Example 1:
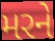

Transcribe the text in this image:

મરને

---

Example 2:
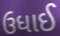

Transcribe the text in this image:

ઉધાઈ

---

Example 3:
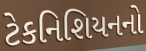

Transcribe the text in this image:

ટેકનિશિયનનો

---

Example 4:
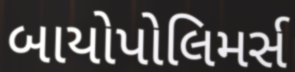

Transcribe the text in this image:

બાયોપોલિમર્સ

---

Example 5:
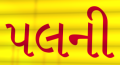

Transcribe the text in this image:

પલની